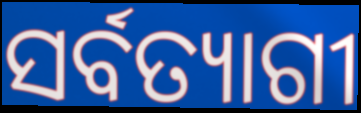
ସର୍ବତ୍ୟାଗୀ